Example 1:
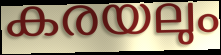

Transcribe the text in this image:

കരയലും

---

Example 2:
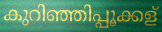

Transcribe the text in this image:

കുറിഞ്ഞിപ്പൂക്കള്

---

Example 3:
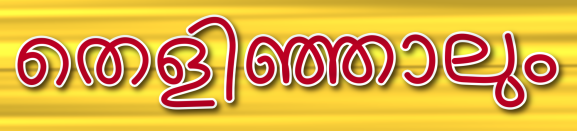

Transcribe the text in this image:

തെളിഞ്ഞാലും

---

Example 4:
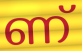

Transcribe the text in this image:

ണ്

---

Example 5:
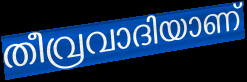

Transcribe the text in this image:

തീവ്രവാദിയാണ്